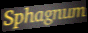
Sphagnum